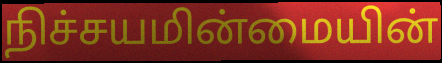
நிச்சயமின்மையின்